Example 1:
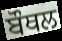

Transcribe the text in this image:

ਬੌਥਲ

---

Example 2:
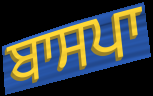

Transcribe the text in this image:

ਬਾਸਪਾ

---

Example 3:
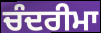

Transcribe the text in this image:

ਚੰਦਰੀਮਾ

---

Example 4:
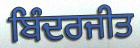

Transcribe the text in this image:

ਬਿੰਦਰਜੀਤ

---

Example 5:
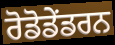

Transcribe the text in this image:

ਰੋਡੋਡੇਂਡਰਨ